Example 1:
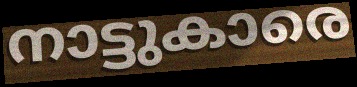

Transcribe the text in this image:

നാട്ടുകാരെ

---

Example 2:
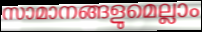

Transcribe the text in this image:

സാമാനങ്ങളുമെല്ലാം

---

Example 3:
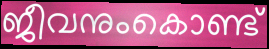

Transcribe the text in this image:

ജീവനുംകൊണ്ട്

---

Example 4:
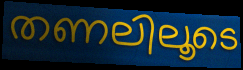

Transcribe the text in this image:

തണലിലൂടെ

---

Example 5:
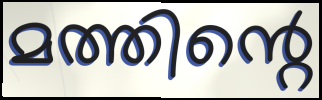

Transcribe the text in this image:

മത്തിന്റെ